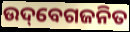
ଉଦ୍‌ବେଗଜନିତ